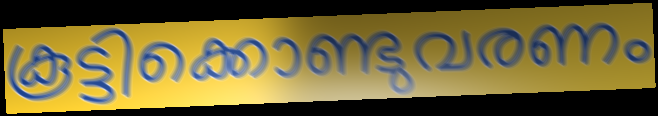
കൂട്ടിക്കൊണ്ടുവരണം